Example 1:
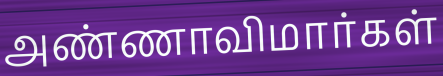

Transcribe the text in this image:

அண்ணாவிமார்கள்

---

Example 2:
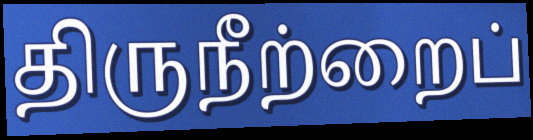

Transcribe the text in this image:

திருநீற்றைப்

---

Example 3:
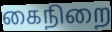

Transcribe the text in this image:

கைநிறை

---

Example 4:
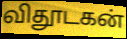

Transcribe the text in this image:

விதூடகன்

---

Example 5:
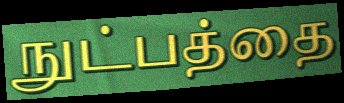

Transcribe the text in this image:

நுட்பத்தை